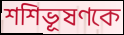
শশিভূষণকে